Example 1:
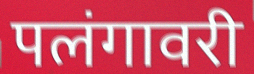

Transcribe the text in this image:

पलंगावरी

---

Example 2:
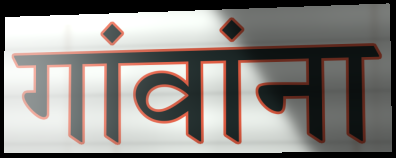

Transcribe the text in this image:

गांवांना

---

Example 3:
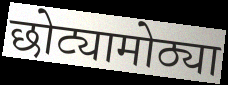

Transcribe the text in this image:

छोट्यामोठ्या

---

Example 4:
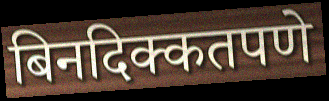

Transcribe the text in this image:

बिनदिक्कतपणे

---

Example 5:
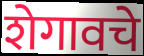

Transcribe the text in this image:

शेगावचे